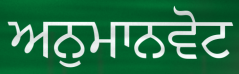
ਅਨੁਮਾਨਵੋਟ